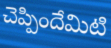
చెప్పిందేమిటి